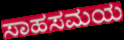
ಸಾಹಸಮಯ